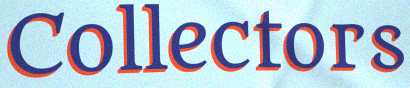
Collectors